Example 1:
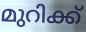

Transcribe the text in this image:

മുറിക്ക്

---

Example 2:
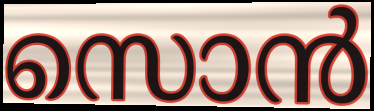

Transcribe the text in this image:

സൊൻ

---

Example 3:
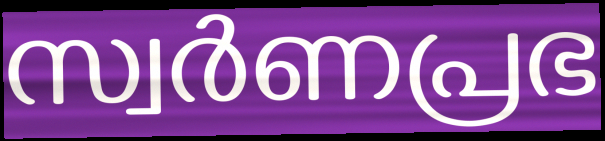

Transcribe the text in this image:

സ്വർണപ്രഭ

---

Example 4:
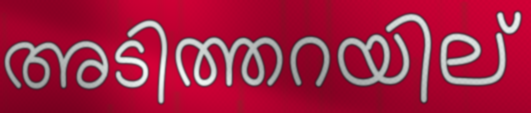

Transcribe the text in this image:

അടിത്തറയില്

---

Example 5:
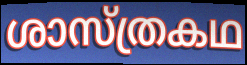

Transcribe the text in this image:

ശാസ്ത്രകഥ